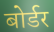
बोर्डर